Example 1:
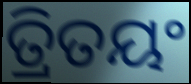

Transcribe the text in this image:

ତ୍ରିତୟଂ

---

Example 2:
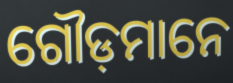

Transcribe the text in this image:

ଗୌଡ଼ମାନେ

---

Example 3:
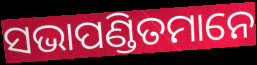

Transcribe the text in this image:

ସଭାପଣ୍ଡିତମାନେ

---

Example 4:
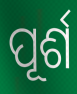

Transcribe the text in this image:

ପୂର୍ଶ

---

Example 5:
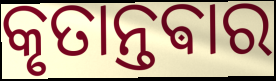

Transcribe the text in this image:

କୃତାନ୍ତଵାର